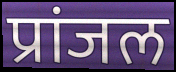
प्रांजल